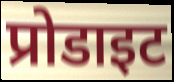
प्रोडाइट